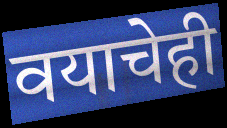
वयाचेही